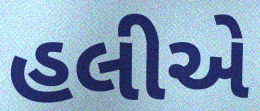
હલીએ